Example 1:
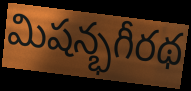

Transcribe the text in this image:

మిషన్భగీరథ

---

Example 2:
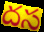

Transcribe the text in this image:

దస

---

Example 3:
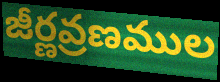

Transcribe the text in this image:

జీర్ణవ్రణముల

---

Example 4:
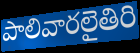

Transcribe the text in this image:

పాలివారలైతిరి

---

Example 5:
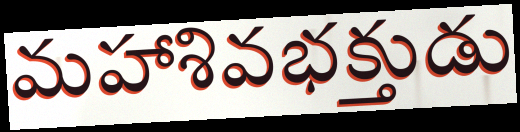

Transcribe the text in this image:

మహాశివభక్తుడు